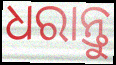
ଧରାନ୍ତୁ